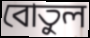
বোতুল